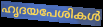
ഹൃദയപേശികൾ